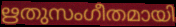
ഋതുസംഗീതമായി